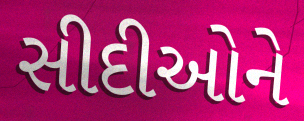
સીદીઓને